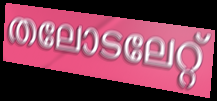
തലോടലേറ്റ്